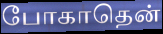
போகாதென்